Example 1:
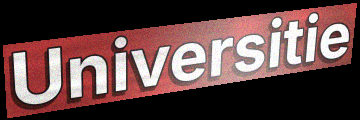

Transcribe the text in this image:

Universitie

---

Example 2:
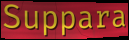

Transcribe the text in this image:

Suppara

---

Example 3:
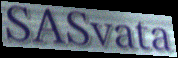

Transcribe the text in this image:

SASvata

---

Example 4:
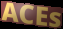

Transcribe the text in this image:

ACEs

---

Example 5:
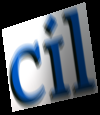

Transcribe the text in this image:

cil